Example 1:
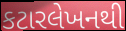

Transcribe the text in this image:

કટારલેખનથી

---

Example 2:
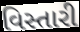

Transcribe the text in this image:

વિસ્તારી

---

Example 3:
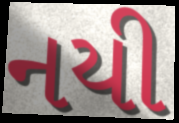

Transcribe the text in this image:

નયી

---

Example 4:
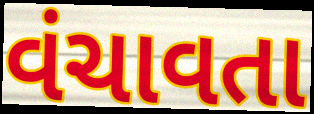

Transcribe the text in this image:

વંચાવતા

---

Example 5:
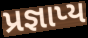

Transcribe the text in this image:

પ્રજ્ઞાપ્ય